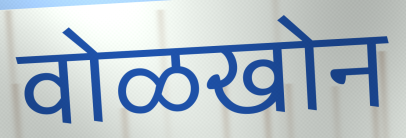
वोळखोन